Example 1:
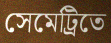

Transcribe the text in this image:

সেমেট্রিতে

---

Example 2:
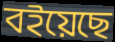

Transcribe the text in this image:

বইয়েছে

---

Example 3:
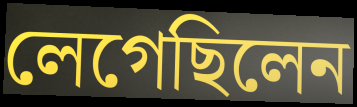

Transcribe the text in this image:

লেগেছিলেন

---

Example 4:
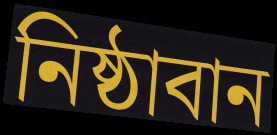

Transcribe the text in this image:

নিষ্ঠাবান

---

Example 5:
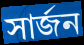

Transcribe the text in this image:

সার্জন